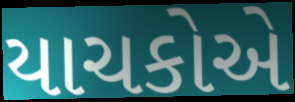
યાચકોએ